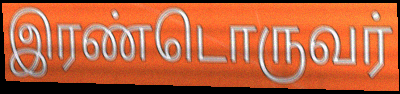
இரண்டொருவர்